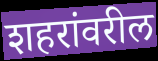
शहरांवरील